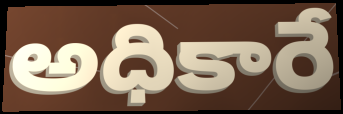
అధికారే